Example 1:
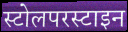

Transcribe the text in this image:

स्टोलपरस्टाइन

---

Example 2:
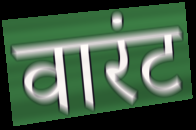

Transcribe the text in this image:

वारंट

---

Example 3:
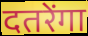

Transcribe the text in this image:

दतरेंगा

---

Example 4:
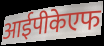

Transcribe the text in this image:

आईपीकेएफ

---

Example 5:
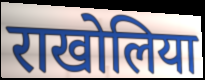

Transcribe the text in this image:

राखोलिया